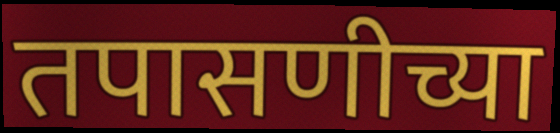
तपासणीच्या